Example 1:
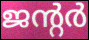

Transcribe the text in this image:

ജന്റർ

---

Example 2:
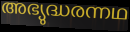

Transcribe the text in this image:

അഭ്യുദ്ധരന്നഥ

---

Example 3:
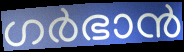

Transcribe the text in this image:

ഗർഭാൻ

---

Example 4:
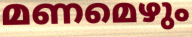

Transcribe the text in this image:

മണമെഴും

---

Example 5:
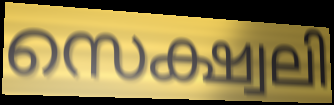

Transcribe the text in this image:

സെക്ഷ്വലി